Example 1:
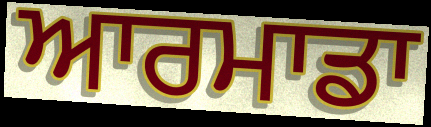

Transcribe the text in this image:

ਆਰਮਾਡਾ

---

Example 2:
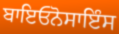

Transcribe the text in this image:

ਬਾਇਓਨੋਸਾਇੰਸ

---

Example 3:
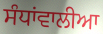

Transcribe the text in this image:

ਸੰਧਾਂਵਾਲੀਆ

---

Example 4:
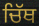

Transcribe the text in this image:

ਚਿੱਥ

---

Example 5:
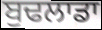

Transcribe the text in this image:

ਬੁਢਲਾਡਾ